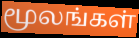
மூலங்கள்